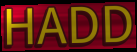
HADD